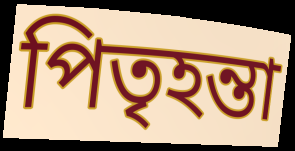
পিতৃহন্তা